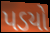
પડયો